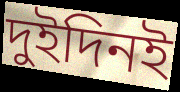
দুইদিনই